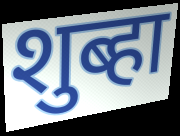
शुब्हा